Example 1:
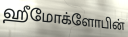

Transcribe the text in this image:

ஹீமோக்ளோபின்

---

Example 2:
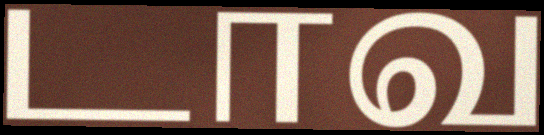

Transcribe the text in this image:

டாவ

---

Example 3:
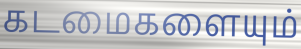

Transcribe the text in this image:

கடமைகளையும்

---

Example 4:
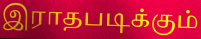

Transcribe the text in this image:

இராதபடிக்கும்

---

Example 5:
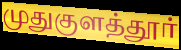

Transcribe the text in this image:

முதுகுளத்தூர்